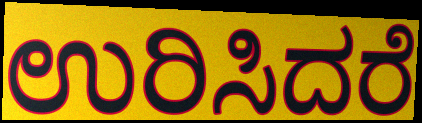
ಉರಿಸಿದರೆ